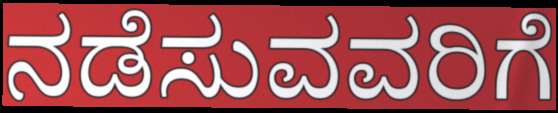
ನಡೆಸುವವರಿಗೆ